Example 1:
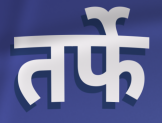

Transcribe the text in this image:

तर्फे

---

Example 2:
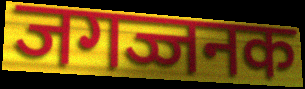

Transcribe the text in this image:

जगज्जनक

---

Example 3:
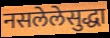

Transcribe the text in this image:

नसलेलेसुद्धा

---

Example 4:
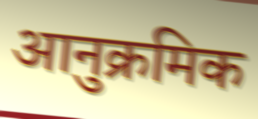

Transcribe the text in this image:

आनुक्रमिक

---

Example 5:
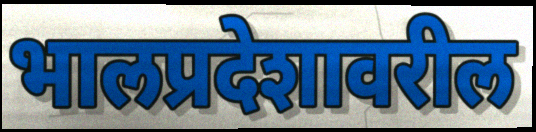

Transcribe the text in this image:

भालप्रदेशावरील